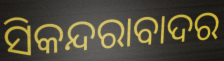
ସିକନ୍ଦରାବାଦର